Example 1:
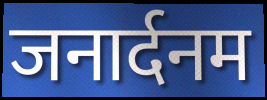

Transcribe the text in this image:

जनार्दनम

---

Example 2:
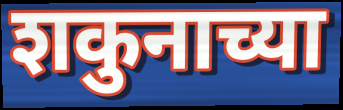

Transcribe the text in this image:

शकुनाच्या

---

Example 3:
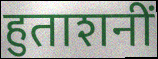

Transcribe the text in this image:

हुताशनीं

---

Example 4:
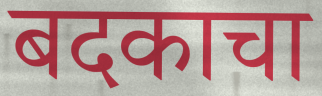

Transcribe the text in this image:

बदकाचा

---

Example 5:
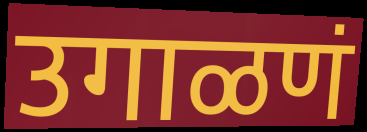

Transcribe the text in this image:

उगाळणं